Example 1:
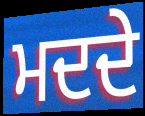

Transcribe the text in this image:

ਮਦਦੇ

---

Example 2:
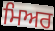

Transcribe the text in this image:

ਮਿਅਰ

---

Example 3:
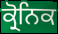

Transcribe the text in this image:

ਕ੍ਰੋਨਿਕ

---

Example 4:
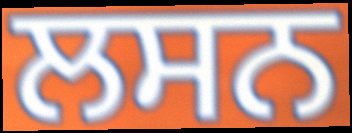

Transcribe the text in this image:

ਲਸਨ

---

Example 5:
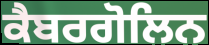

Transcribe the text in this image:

ਕੈਬਰਗੋਲਿਨ